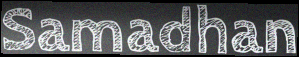
Samadhan